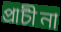
প্রাচীনা